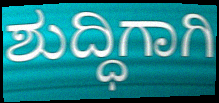
ಶುದ್ಧಿಗಾಗಿ